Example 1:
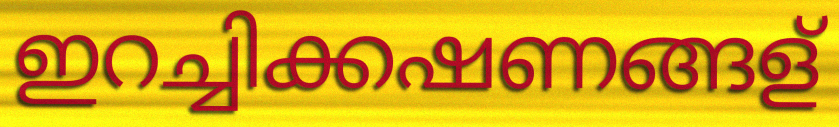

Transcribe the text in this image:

ഇറച്ചിക്കഷണങ്ങള്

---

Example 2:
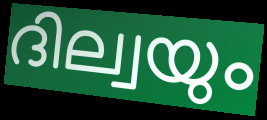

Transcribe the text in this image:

ദില്വയും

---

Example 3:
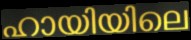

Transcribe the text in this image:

ഹായിയിലെ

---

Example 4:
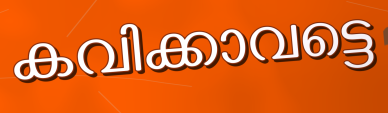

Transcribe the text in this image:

കവിക്കാവട്ടെ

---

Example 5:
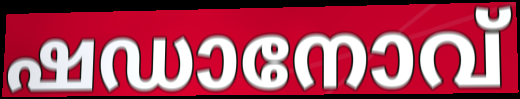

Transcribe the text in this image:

ഷഡാനോവ്